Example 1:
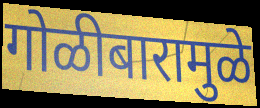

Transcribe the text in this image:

गोळीबारामुळे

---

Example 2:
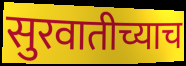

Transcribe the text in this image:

सुरवातीच्याच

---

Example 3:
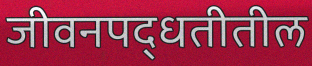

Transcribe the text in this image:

जीवनपद्धतीतील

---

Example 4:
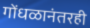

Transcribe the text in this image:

गोंधळानंतरही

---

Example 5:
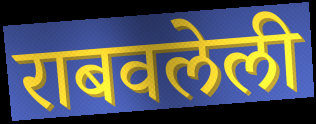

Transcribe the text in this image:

राबवलेली